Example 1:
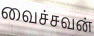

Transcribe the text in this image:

வைச்சவன்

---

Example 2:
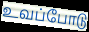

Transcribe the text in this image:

உவப்போடு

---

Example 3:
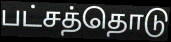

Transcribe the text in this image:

பட்சத்தொடு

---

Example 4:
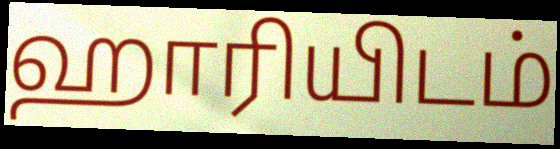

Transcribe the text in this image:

ஹாரியிடம்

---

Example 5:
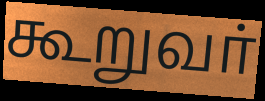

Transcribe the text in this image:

கூறுவர்